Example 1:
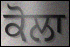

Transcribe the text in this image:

ਕੋਲਾ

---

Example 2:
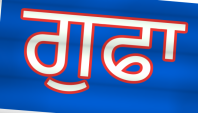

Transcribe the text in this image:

ਗੁਫਾ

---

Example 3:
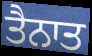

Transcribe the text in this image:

ਤੈਨਾਤ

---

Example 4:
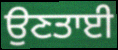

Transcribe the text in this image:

ਉਣਤਾਈ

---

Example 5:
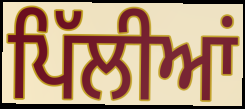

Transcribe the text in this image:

ਪਿੱਲੀਆਂ